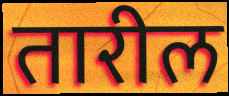
तारील